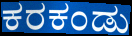
ಕರಕಂಡು